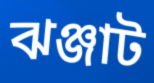
ঝঞ্জাট